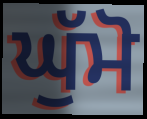
ਘੁੱਮੋ